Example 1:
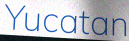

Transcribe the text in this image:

Yucatan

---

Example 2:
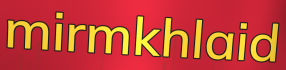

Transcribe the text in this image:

mirmkhlaid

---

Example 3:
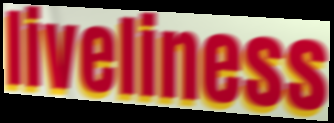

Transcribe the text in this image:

liveliness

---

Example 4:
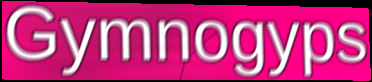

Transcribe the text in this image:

Gymnogyps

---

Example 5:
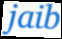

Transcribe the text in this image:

jaib